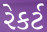
રેકર્ટ